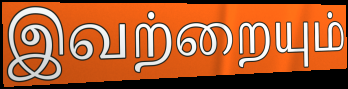
இவற்றையும்